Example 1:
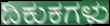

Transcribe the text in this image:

ದಿಕುಕಗಳು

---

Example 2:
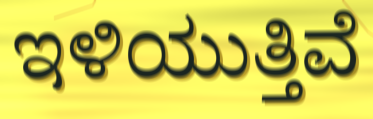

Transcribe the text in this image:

ಇಳಿಯುತ್ತಿವೆ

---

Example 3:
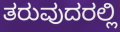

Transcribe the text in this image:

ತರುವುದರಲ್ಲಿ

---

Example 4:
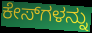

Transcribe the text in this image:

ಕೇಸ್‌ಗಳನ್ನು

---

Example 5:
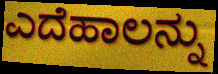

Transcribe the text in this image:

ಎದೆಹಾಲನ್ನು